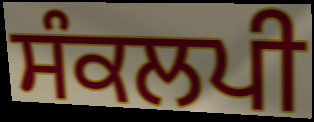
ਸੰਕਲਪੀ